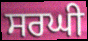
ਸਰਘੀ